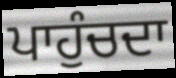
ਪਾਹੁੰਚਦਾ